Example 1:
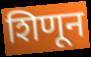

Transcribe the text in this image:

शिणून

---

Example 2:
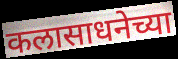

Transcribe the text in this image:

कलासाधनेच्या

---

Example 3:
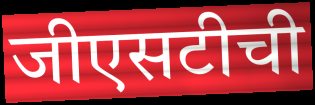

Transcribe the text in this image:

जीएसटीची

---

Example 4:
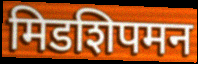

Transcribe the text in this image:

मिडशिपमन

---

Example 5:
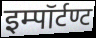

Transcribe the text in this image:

इम्पॉर्टण्ट